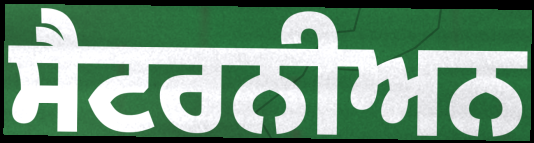
ਸੈਟਰਨੀਅਨ